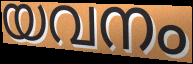
യവനം